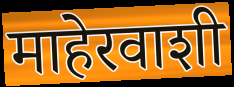
माहेरवाशी